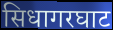
सिधागरघाट